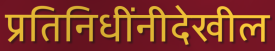
प्रतिनिधींनीदेखील